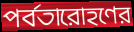
পর্বতারোহণের